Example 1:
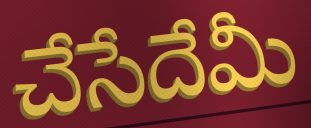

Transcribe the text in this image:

చేసేదేమీ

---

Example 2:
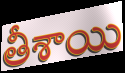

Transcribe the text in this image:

తీశాయి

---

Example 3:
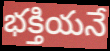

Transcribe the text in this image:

భక్తియనే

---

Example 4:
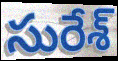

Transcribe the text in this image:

సురేశ్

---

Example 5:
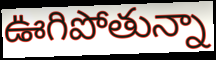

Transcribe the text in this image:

ఊగిపోతున్నా